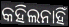
କହିଲନାହିଁ